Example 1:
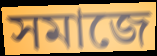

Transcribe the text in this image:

সমাজে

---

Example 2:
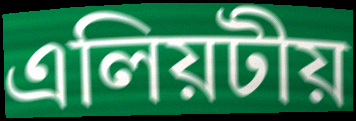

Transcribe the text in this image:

এলিয়টীয়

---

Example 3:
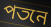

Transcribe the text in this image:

পতনে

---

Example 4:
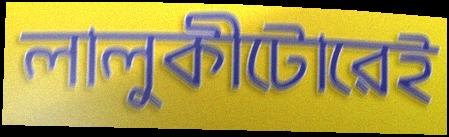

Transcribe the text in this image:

লালুকীটোৱেই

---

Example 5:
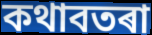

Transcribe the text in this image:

কথাবতৰা